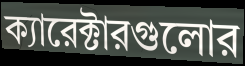
ক্যারেক্টারগুলোর